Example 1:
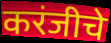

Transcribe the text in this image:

करंजीचे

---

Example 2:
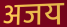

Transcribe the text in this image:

अजय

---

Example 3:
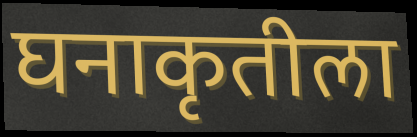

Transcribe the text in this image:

घनाकृतीला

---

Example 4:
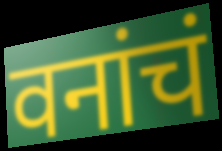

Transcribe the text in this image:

वनांचं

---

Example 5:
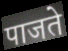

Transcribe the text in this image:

पाजते